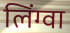
लिंग्वा